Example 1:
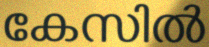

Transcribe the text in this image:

കേസിൽ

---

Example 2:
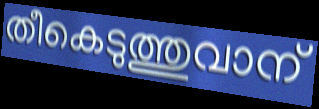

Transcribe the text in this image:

തീകെടുത്തുവാന്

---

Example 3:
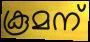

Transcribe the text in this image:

കൂമന്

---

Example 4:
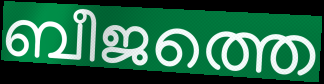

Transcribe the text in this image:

ബീജത്തെ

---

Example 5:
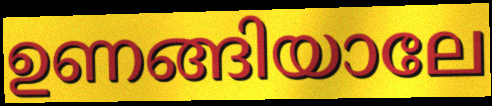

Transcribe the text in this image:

ഉണങ്ങിയാലേ